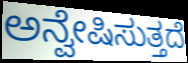
ಅನ್ವೇಷಿಸುತ್ತದೆ